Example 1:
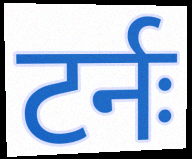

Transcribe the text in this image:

टर्नः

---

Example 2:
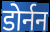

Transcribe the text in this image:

डोर्नन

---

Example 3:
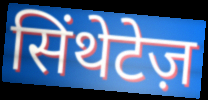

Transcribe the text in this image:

सिंथेटेज़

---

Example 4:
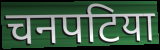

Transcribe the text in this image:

चनपटिया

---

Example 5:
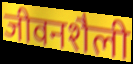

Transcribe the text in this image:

जीवनशैली